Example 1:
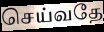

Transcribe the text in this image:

செய்வதே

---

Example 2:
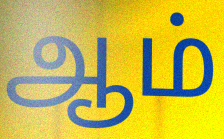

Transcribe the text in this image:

ஆம்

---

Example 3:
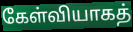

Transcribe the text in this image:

கேள்வியாகத்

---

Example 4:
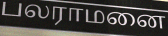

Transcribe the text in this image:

பலராமனை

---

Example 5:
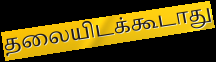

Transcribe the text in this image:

தலையிடக்கூடாது